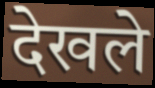
देखले